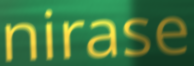
nirase